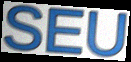
SEU